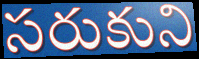
సరుకుని